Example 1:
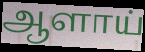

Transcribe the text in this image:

ஆளாய்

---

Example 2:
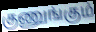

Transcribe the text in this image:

குணுங்கும்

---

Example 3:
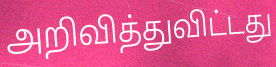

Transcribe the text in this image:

அறிவித்துவிட்டது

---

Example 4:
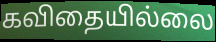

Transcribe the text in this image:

கவிதையில்லை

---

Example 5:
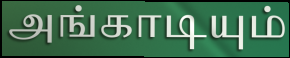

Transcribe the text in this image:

அங்காடியும்